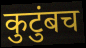
कुटुंबच